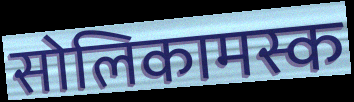
सोलिकामस्क